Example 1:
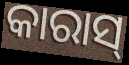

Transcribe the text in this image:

କାରାସ୍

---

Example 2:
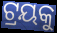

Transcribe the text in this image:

ଟ୍ରୟକୁ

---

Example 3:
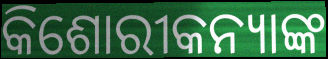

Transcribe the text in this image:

କିଶୋରୀକନ୍ୟାଙ୍କ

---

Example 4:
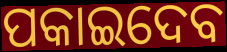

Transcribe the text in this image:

ପକାଇଦେବ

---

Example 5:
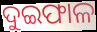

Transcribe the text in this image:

ଦୁଇଫାଳ